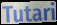
Tutari